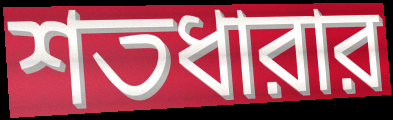
শতধারার